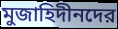
মুজাহিদীনদের